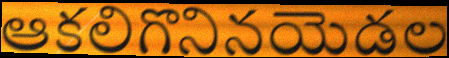
ఆకలిగొనినయెడల